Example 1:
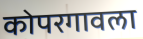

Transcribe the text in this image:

कोपरगावला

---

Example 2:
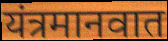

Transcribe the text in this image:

यंत्रमानवात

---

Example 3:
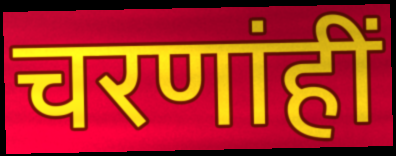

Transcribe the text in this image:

चरणांहीं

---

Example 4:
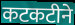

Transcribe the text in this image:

कटकटीने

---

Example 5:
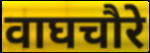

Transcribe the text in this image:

वाघचौरे